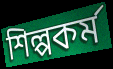
শিল্পকর্ম